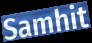
Samhit